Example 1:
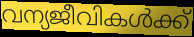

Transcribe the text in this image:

വന്യജീവികൾക്ക്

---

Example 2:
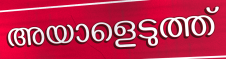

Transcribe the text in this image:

അയാളെടുത്ത്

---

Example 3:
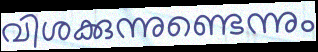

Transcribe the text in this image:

വിശക്കുന്നുണ്ടെന്നും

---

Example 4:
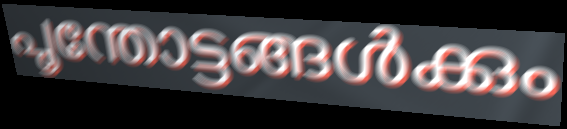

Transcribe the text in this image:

പൂന്തോട്ടങ്ങൾക്കും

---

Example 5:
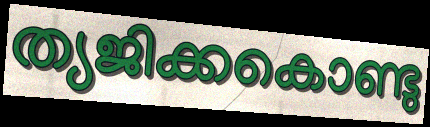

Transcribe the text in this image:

ത്യജിക്കകൊണ്ടു